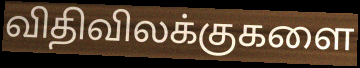
விதிவிலக்குகளை